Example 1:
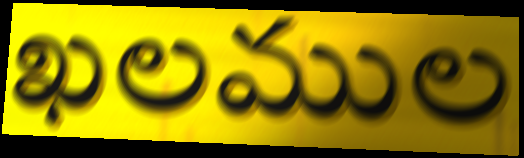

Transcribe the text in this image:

ఖలముల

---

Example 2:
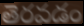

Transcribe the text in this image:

తెరవడం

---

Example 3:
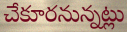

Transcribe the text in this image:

చేకూరనున్నట్లు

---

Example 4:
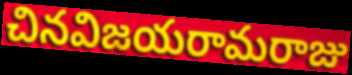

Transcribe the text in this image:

చినవిజయరామరాజు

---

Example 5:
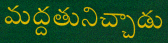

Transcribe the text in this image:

మద్దతునిచ్చాడు